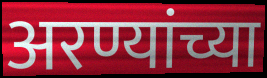
अरण्यांच्या